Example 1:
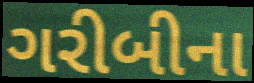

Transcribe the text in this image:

ગરીબીના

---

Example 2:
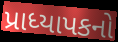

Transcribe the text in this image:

પ્રાધ્યાપકનો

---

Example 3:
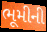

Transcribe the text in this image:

ભૂમીની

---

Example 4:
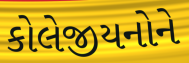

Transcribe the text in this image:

કોલેજીયનોને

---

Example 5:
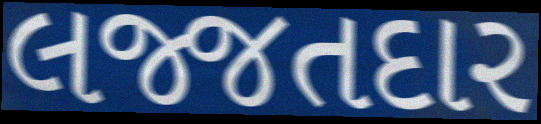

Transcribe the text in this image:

લજ્જતદાર